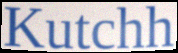
Kutchh